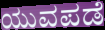
ಯುವಪಡೆ